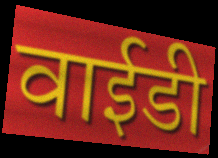
वाईडी